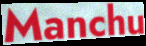
Manchu